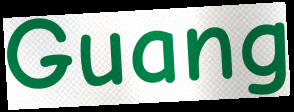
Guang